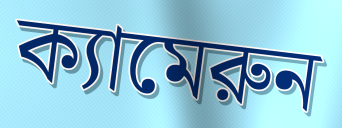
ক্যামেরুন